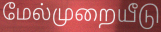
மேல்முறையீடு